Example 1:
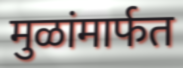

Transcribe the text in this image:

मुळांमार्फत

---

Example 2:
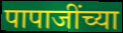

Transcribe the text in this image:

पापाजींच्या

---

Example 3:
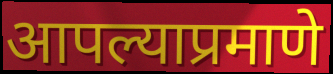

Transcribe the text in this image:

आपल्याप्रमाणे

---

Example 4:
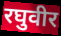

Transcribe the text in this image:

रघुवीर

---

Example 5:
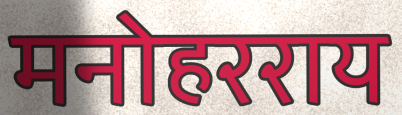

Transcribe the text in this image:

मनोहरराय